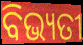
ବିଭ୍ୟତୀ